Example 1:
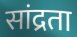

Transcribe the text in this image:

सांद्रता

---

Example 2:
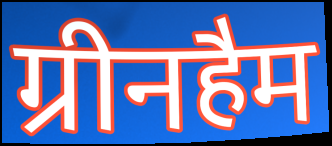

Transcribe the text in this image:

ग्रीनहैम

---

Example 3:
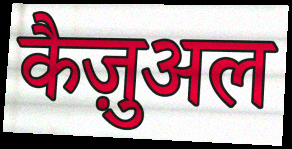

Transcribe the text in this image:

कैज़ुअल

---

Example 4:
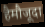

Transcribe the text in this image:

हैमौजूदा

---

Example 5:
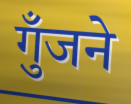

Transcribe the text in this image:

गुँजने